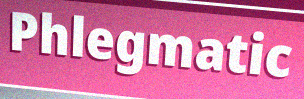
Phlegmatic